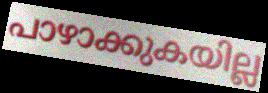
പാഴാക്കുകയില്ല